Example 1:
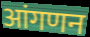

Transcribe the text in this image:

आंगणन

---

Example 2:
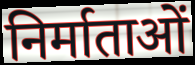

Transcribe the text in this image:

निर्माताओं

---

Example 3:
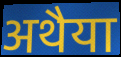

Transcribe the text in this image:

अथैया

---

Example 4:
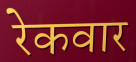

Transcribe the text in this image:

रेकवार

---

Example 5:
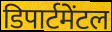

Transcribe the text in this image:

डिपार्टमेंटल